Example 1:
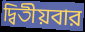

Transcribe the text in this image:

দ্বিতীয়বার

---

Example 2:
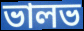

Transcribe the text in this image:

ভালভ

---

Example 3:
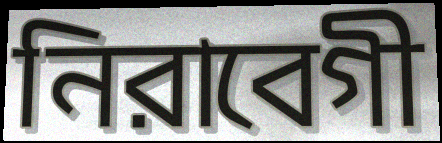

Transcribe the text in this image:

নিরাবেগী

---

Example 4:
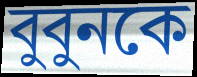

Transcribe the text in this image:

বুবুনকে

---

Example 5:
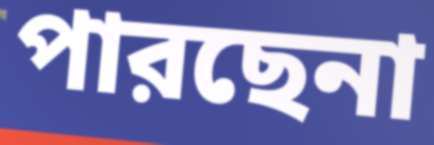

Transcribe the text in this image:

পারছেনা